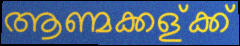
ആണ്മക്കള്ക്ക്